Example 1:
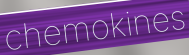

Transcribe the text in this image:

chemokines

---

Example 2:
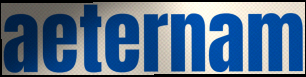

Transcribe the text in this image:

aeternam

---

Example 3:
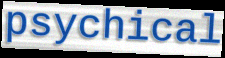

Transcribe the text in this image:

psychical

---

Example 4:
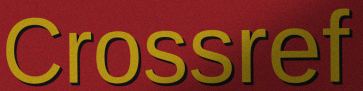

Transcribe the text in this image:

Crossref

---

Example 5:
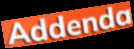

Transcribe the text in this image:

Addenda